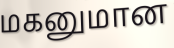
மகனுமான